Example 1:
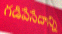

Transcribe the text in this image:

గడిపేసేదాన్ని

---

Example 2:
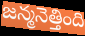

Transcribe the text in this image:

జన్మనెత్తింది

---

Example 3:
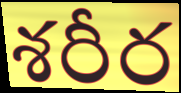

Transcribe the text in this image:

శరీర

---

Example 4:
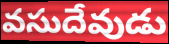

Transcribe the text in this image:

వసుదేవుడు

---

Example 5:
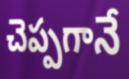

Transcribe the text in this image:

చెప్పగానే